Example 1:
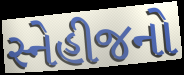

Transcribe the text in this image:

સ્નેહીજનો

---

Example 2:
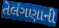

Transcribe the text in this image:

તેલંગણાની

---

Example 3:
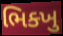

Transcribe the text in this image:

ભિક્ખુ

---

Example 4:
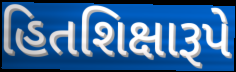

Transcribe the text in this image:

હિતશિક્ષારૂપે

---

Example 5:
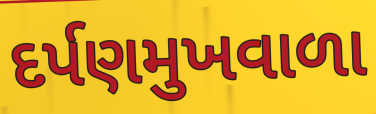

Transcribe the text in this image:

દર્પણમુખવાળા